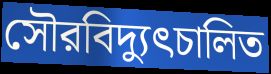
সৌরবিদ্যুৎচালিত